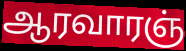
ஆரவாரஞ்